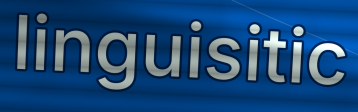
linguisitic